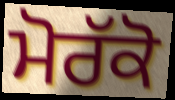
ਮੋਰੱਕੋ